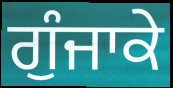
ਗੁੰਜਾਕੇ